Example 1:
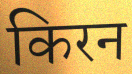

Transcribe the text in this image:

किरन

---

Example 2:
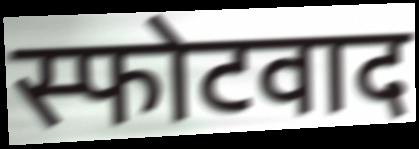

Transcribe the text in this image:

स्फोटवाद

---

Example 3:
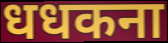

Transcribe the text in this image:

धधकना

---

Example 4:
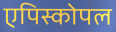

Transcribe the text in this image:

एपिस्कोपल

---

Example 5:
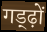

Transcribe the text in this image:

गड्‌ढ़ों